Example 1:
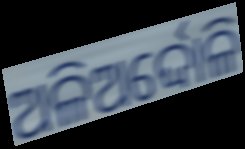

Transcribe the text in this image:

ଅଳିଅର୍ଦ୍ଦୋଳି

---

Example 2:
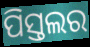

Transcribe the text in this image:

ପିସ୍ତଲର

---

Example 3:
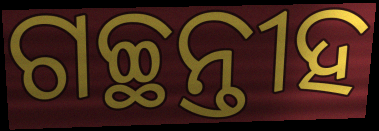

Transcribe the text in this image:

ଗଚ୍ଛନ୍ତୀହ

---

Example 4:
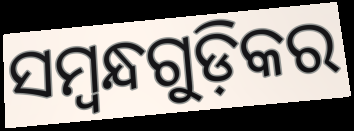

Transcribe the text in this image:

ସମ୍ବନ୍ଧଗୁଡ଼ିକର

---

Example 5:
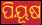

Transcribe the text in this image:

ପିୟୂଷ